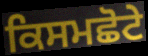
ਕਿਸਮਛੋਟੇ